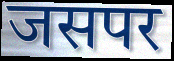
जसपर